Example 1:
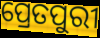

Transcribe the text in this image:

ପ୍ରେତପୁରୀ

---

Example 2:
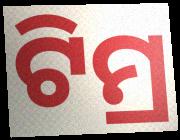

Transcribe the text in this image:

ଟିମ୍ର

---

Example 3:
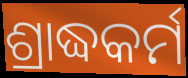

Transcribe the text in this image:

ଶ୍ରାଦ୍ଧକର୍ମ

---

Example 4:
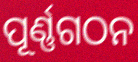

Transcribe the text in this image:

ପୂର୍ଣ୍ଣଗଠନ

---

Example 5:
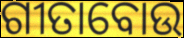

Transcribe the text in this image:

ଗୀତାବୋଉ